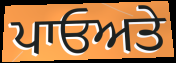
ਪਾਓਅਤੇ